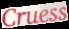
Cruess